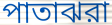
পাতাঝরা